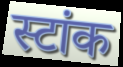
स्टांक